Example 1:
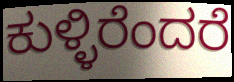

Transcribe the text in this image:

ಕುಳ್ಳಿರೆಂದರೆ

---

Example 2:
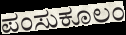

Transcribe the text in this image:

ಪಂಸುಕೂಲಂ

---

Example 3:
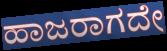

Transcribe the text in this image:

ಹಾಜರಾಗದೇ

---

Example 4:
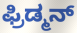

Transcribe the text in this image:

ಫ್ರಿಡ್ಮನ್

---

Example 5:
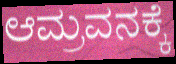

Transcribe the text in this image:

ಆಮ್ರವನಕ್ಕೆ